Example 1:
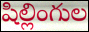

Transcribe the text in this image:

షిల్లింగుల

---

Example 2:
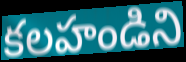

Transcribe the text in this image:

కలహండిని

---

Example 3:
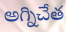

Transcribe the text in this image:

అగ్నిచేత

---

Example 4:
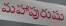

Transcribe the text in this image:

మహాపురుషు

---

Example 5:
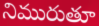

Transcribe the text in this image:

నిమురుతూ